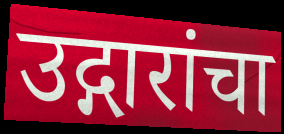
उद्गारांचा